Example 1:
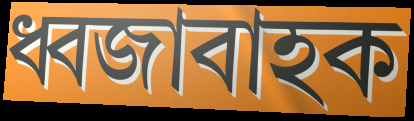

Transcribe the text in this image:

ধ্বজাবাহক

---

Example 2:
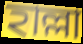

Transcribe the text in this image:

হাল্লা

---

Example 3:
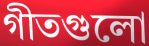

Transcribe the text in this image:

গীতগুলো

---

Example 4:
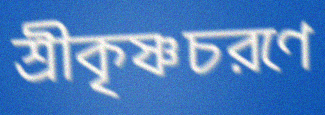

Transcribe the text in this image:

শ্রীকৃষ্ণচরণে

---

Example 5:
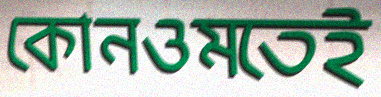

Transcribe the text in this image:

কোনওমতেই